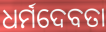
ଧର୍ମଦେବତା